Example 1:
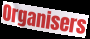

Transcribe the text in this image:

Organisers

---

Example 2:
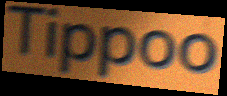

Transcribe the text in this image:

Tippoo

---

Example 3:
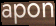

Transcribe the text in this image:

apon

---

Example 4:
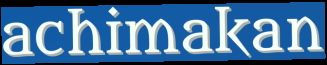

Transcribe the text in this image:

achimakan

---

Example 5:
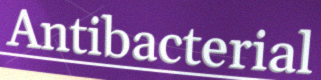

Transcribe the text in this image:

Antibacterial